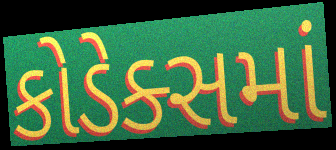
કોડેક્સમાં